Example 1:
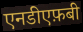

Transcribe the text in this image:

एनडीएफ़बी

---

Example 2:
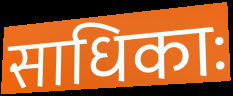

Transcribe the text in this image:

साधिकाः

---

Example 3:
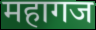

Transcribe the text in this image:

महागज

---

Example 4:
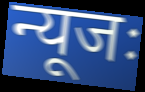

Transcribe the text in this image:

न्यूजः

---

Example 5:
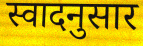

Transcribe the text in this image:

स्वादनुसार